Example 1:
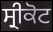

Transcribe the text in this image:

ਸ੍ਰੀਕੋਟ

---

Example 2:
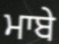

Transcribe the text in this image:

ਮਾਬੇ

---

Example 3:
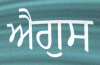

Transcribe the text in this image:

ਐਗੁਸ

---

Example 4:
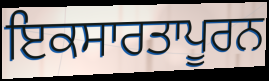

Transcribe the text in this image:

ਇਕਸਾਰਤਾਪੂਰਨ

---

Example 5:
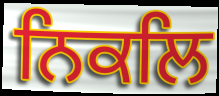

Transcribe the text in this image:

ਨਿਕਲਿ